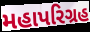
મહાપરિગ્રહ